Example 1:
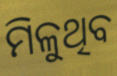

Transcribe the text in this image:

ମିଳୁଥିବ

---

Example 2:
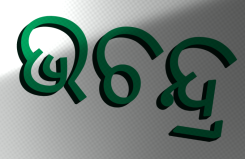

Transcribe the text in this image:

ଭଚନ୍ଦ୍ର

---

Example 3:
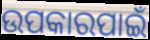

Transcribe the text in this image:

ଉପକାରପାଇଁ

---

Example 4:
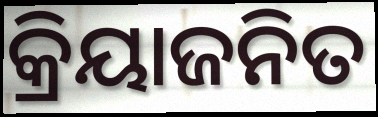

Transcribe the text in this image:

କ୍ରିୟାଜନିତ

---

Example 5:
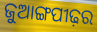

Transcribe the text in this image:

ଜୁଆଙ୍ଗପୀଢ଼ର